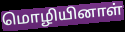
மொழியினாள்